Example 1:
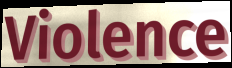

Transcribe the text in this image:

Violence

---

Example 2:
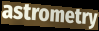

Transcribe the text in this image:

astrometry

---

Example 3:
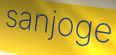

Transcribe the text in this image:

sanjoge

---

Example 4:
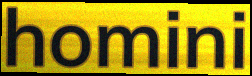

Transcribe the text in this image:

homini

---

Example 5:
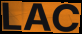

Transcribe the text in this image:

LAC